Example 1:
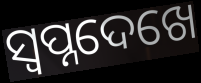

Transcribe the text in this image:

ସ୍ୱପ୍ନଦେଖେ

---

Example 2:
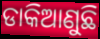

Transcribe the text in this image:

ଡାକିଆଣୁଛି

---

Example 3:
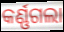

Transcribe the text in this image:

କର୍ଣ୍ଣଗଲା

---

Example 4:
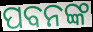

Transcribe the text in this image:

ପବନଙ୍କ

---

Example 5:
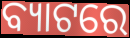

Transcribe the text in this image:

ବ୍ୟାଟରେ